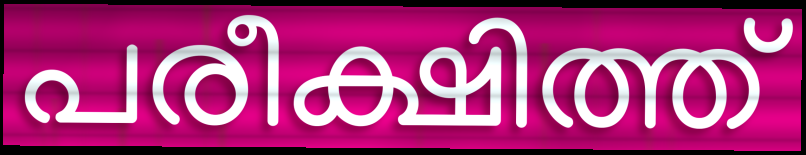
പരീക്ഷിത്ത്